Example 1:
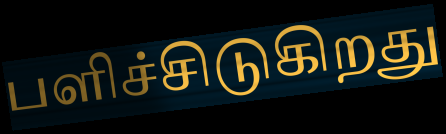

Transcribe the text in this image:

பளிச்சிடுகிறது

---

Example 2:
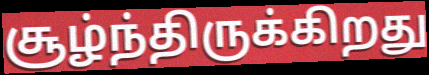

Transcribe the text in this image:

சூழ்ந்திருக்கிறது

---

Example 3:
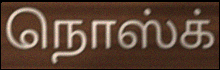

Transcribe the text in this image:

நொஸ்க்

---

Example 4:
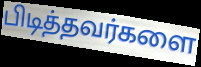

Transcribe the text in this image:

பிடித்தவர்களை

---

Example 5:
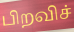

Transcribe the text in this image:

பிறவிச்